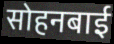
सोहनबाई